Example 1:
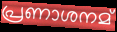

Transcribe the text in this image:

പ്രണാശനമ്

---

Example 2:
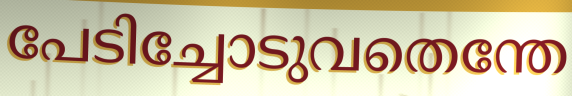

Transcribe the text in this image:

പേടിച്ചോടുവതെന്തേ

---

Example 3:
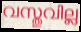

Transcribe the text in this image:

വസ്തുവില്ല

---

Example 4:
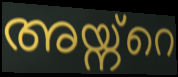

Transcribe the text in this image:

അയ്ന്റെ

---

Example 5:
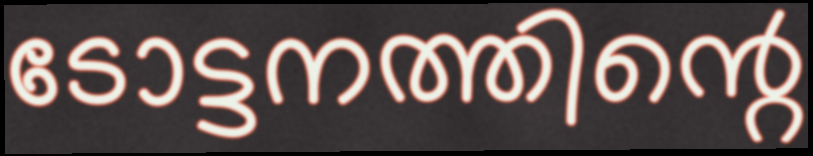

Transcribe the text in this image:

ടോട്ടനത്തിന്റെ